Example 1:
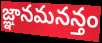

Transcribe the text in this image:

జ్ఞానమనన్తం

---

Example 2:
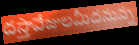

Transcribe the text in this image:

దస్తావేజులమీదనున్న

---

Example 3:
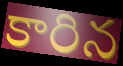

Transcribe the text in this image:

కారిన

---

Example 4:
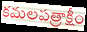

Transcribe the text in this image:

కమలపత్రాక్షీం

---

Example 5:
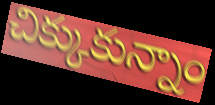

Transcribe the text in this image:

చిక్కుకున్నాం